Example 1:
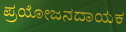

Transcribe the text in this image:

ಪ್ರಯೋಜನದಾಯಕ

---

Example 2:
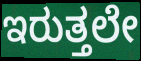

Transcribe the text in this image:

ಇರುತ್ತಲೇ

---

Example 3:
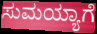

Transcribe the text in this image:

ಸುಮಯ್ಯಾಗೆ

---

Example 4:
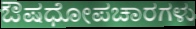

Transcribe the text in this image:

ಔಷಧೋಪಚಾರಗಳು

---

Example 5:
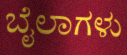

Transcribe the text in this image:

ಬೈಲಾಗಳು